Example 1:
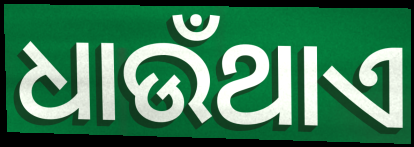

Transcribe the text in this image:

ଧାଉଁଥାଏ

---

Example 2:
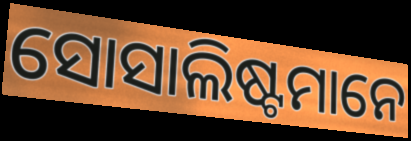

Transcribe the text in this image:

ସୋସାଲିଷ୍ଟମାନେ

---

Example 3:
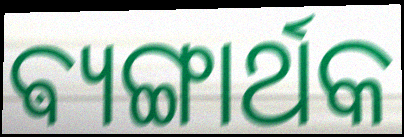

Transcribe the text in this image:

ଵ୍ୟଙ୍ଗାର୍ଥକ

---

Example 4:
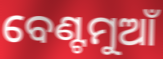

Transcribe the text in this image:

ବେଣ୍ଟମୁଆଁ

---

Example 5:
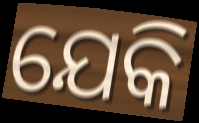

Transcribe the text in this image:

ଯେକି